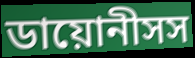
ডায়োনীসস